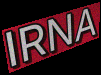
IRNA